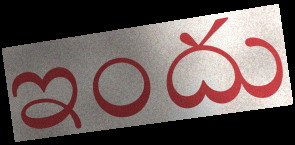
ఇందు